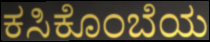
ಕಸಿಕೊಂಬೆಯ